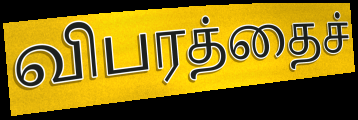
விபரத்தைச்